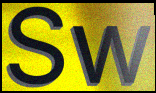
Sw